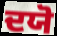
ਦਯੋ